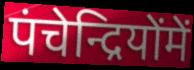
पंचेन्द्रियोंमें